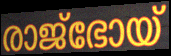
രാജ്ഭോയ്